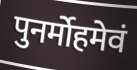
पुनर्मोहमेवं